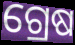
ଗ୍ରେଷ